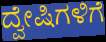
ದ್ವೇಷಿಗಳಿಗೆ